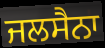
ਜਲਸੈਨਾ